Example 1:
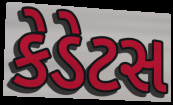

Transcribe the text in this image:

કેડેટસ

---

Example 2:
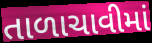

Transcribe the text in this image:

તાળાચાવીમાં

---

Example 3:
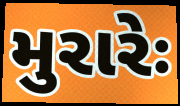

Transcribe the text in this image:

મુરારેઃ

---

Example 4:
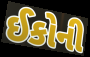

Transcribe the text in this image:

ઈકોની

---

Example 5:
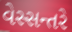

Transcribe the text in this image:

વેસ્સન્તરે